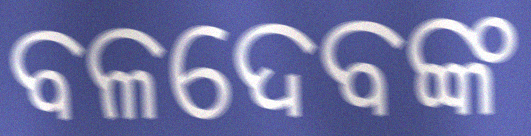
ବଳଦେବଙ୍କ